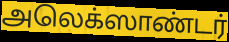
அலெக்ஸாண்டர்